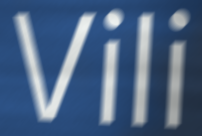
Vili